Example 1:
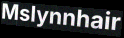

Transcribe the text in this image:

Mslynnhair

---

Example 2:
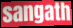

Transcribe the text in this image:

sangath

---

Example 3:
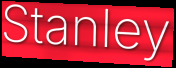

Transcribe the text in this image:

Stanley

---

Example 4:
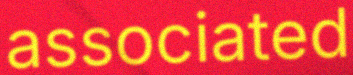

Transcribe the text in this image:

associated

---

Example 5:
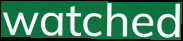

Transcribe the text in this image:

watched